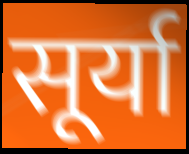
सूर्या